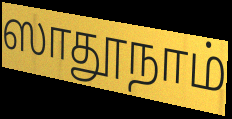
ஸாதூநாம்